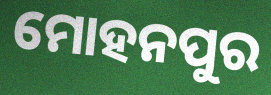
ମୋହନପୁର